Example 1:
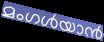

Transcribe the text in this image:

മംഗൾയാൻ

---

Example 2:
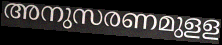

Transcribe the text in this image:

അനുസരണമുളള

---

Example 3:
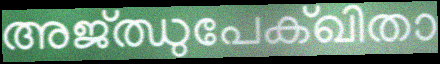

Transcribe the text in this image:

അജ്ഝുപേക്ഖിതാ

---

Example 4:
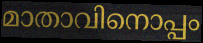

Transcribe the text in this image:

മാതാവിനൊപ്പം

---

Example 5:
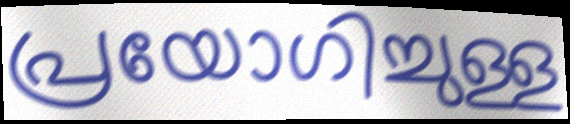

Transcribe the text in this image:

പ്രയോഗിച്ചുള്ള